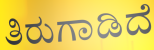
ತಿರುಗಾಡಿದೆ